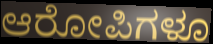
ಆರೋಪಿಗಳೂ